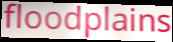
floodplains